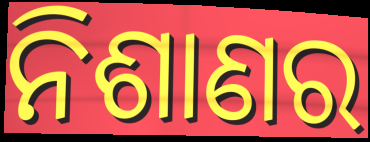
ନିଶାଣର